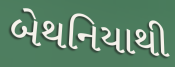
બેથનિયાથી